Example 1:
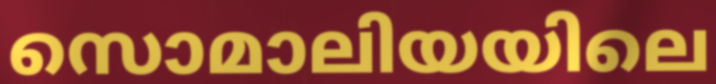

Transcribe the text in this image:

സൊമാലിയയിലെ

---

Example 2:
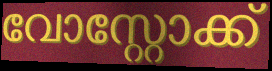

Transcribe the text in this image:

വോസ്റ്റോക്ക്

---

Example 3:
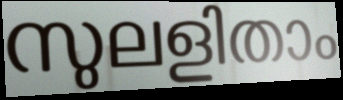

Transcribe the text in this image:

സുലളിതാം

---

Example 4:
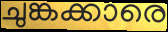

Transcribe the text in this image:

ചുങ്കക്കാരെ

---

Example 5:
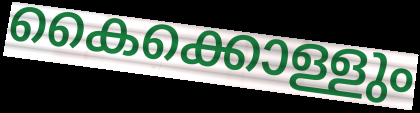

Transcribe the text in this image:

കൈക്കൊള്ളും